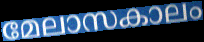
മേലാസകാലം